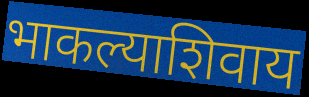
भाकल्याशिवाय